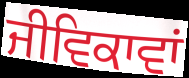
ਜੀਵਿਕਾਵਾਂ